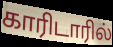
காரிடாரில்